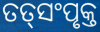
ତତ୍‌ସଂପୃକ୍ତ